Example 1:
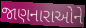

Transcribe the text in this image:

જાણનારાઓને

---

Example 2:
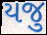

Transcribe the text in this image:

યજુ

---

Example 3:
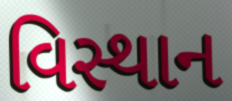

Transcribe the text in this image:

વિસ્થાન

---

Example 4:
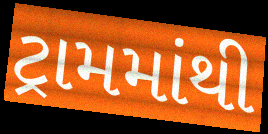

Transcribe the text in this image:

ટ્રામમાંથી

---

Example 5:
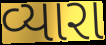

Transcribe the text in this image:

વ્યારા